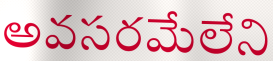
అవసరమేలేని